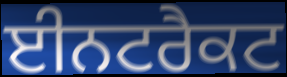
ਈਨਟਰੈਕਟ